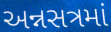
અન્નસત્રમાં